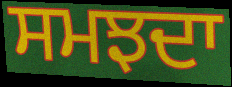
ਸਮਝਦਾ